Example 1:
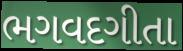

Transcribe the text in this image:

ભગવદગીતા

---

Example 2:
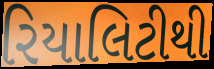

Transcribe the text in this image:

રિયાલિટીથી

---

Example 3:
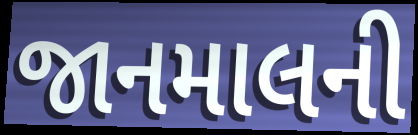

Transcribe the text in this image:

જાનમાલની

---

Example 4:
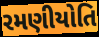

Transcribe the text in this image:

રમણીયોતિ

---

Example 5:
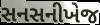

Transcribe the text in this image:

સનસનીખેજ